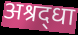
अश्रद्धा